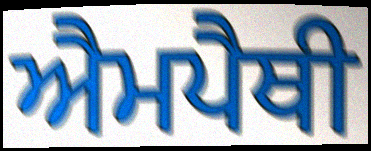
ਐਮਪੈਥੀ